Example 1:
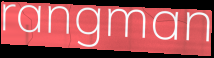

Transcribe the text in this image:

rangman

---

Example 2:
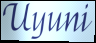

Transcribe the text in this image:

Uyuni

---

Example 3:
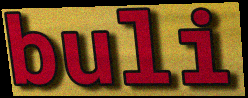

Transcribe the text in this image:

buli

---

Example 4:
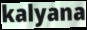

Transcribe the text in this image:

kalyana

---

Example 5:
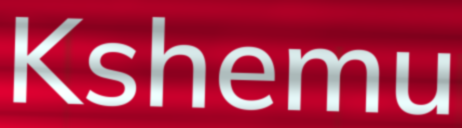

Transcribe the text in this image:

Kshemu